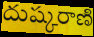
దుష్కరాణి